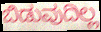
ಬಿಡುವುದಿಲ್ಲ